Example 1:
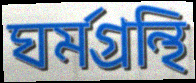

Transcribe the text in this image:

ঘর্মগ্রন্থি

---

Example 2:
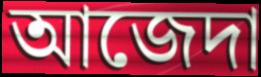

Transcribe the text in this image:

আজেদা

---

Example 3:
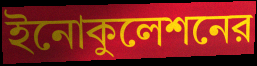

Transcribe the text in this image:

ইনোকুলেশনের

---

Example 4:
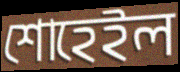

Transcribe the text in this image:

শোহেইল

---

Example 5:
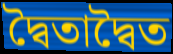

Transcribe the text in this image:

দ্বৈতাদ্বৈত